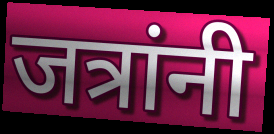
जत्रांनी